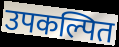
उपकल्पित